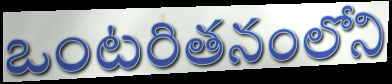
ఒంటరితనంలోని